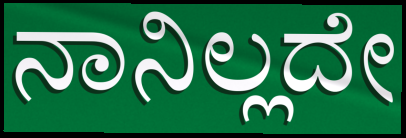
ನಾನಿಲ್ಲದೇ